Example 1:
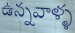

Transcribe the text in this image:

ఉన్నవాళ్ళ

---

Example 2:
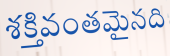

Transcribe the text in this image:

శక్తివంతమైనది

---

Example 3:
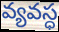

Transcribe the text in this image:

వ్యవస్ధ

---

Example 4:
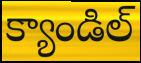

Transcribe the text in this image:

క్యాండిల్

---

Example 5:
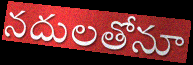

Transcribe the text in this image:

నదులతోనూ